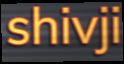
shivji